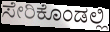
ಸೇರಿಕೊಂಡಲ್ಲಿ